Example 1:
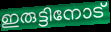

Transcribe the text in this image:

ഇരുട്ടിനോട്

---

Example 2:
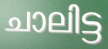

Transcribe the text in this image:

ചാലിട്ട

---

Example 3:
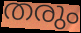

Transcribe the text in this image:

തരും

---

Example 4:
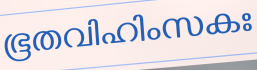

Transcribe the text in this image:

ഭൂതവിഹിംസകഃ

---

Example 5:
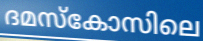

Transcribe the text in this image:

ദമസ്കോസിലെ